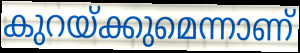
കുറയ്ക്കുമെന്നാണ്